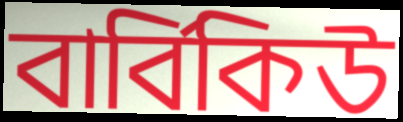
বাৰ্বিকিউ